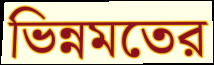
ভিন্নমতের